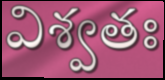
విశ్వతః